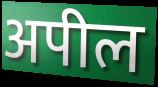
अपील